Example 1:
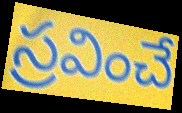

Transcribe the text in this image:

స్రవించే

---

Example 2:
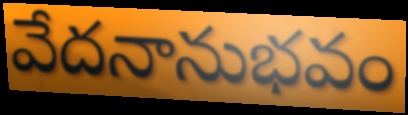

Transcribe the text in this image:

వేదనానుభవం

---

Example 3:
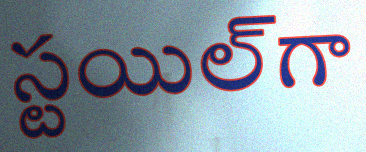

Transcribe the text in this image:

స్టయిల్‌గా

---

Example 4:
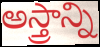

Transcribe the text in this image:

అస్త్రాన్ని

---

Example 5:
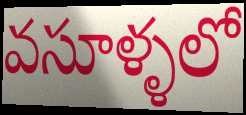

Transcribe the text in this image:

వసూళ్ళలో